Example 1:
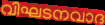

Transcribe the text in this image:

വിഘടനവാദ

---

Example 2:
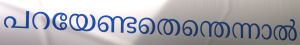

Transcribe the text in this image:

പറയേണ്ടതെന്തെന്നാൽ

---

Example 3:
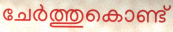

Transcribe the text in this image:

ചേർത്തുകൊണ്ട്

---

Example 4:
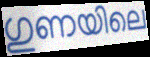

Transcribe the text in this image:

ഗുണയിലെ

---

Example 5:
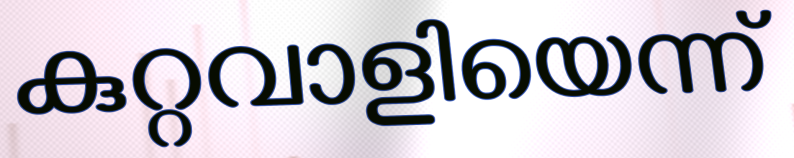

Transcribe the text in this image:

കുറ്റവാളിയെന്ന്